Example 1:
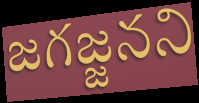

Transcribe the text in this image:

జగజ్జనని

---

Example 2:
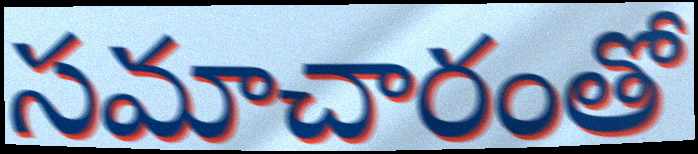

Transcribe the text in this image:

సమాచారంతో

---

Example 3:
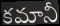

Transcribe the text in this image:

కమానీ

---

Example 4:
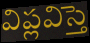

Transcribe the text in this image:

విప్లవిస్తె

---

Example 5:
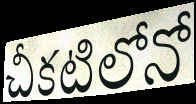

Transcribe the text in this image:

చీకటిలోనో